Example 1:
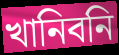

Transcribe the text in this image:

খানিবনি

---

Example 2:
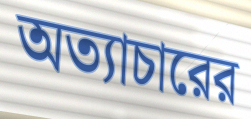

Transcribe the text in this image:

অত্যাচারের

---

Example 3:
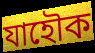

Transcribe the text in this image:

যাহৌক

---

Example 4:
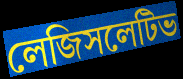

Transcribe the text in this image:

লেজিসলেটিভ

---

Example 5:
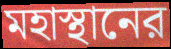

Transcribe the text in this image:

মহাস্থানের